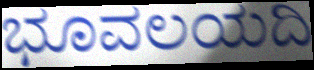
ಭೂವಲಯದಿ